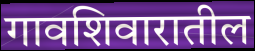
गावशिवारातील